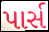
પાર્સ